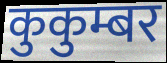
कुकुम्बर